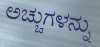
ಅಚ್ಚುಗಳನ್ನು